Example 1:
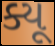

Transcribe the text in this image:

ક્યૂ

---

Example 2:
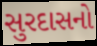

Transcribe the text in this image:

સુરદાસનો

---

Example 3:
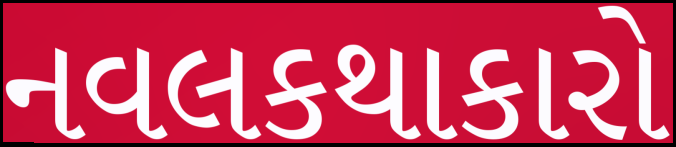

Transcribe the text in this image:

નવલકથાકારો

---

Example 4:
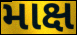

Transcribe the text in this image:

માક્ષ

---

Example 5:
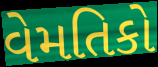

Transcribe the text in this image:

વેમતિકો